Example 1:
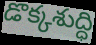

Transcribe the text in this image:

డొక్కశుద్ధి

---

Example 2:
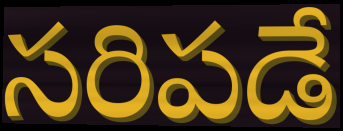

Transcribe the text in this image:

సరిపడే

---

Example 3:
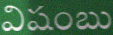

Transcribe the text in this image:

విషంబు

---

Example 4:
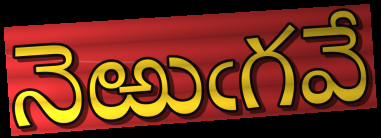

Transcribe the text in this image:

నెఱుఁగవే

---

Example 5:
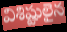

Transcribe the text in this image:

విశిష్టులైన